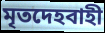
মৃতদেহবাহী